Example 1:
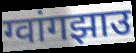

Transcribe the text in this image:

ग्वांगझाउ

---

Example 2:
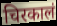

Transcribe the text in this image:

चिरकालं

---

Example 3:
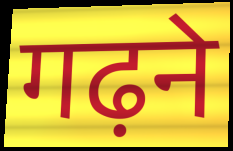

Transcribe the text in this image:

गढ़ने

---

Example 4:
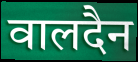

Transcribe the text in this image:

वालदैन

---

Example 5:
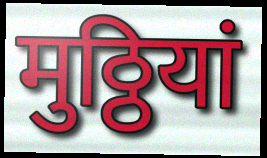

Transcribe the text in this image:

मुठ्ठियां